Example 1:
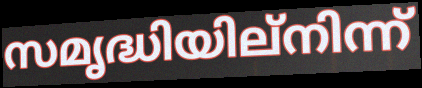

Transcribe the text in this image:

സമൃദ്ധിയില്നിന്ന്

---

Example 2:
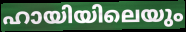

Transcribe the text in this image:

ഹായിയിലെയും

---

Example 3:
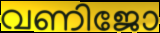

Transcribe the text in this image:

വണിജോ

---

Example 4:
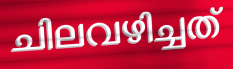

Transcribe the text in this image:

ചിലവഴിച്ചത്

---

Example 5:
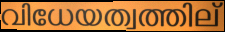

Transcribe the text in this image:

വിധേയത്വത്തില്